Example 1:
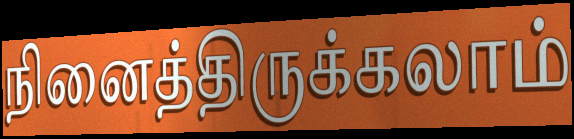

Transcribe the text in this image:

நினைத்திருக்கலாம்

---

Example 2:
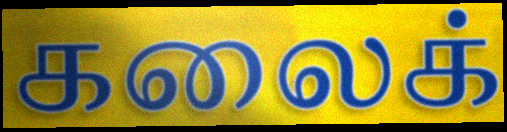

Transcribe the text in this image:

கலைக்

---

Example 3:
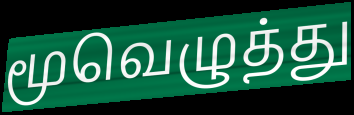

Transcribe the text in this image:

மூவெழுத்து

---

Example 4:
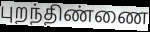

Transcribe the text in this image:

புறந்திண்ணை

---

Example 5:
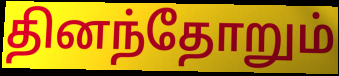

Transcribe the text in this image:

தினந்தோறும்